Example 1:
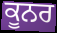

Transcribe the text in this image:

ਕੂਨਰ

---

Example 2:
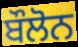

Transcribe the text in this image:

ਬੌਲੋਨ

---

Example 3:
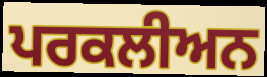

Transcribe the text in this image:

ਪਰਕਲੀਅਨ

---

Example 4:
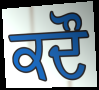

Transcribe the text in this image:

ਕਦੌ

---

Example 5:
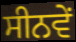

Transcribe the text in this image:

ਸੀਨਵੇਂ